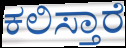
ಕಲಿಸ್ತಾರೆ